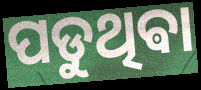
ପଡୁଥିଵା